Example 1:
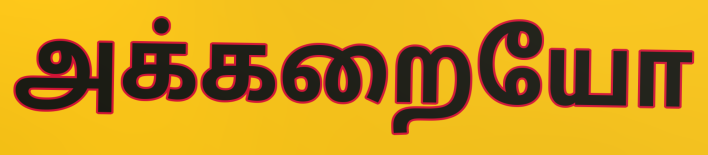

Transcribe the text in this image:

அக்கறையோ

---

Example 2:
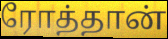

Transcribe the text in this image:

ரோத்தான்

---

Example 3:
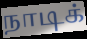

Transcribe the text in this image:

நாடிக்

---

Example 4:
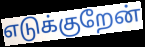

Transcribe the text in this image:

எடுக்குறேன்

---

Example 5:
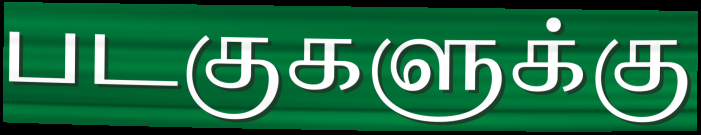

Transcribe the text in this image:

படகுகளுக்கு